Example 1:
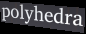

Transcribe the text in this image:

polyhedra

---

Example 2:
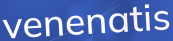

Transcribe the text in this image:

venenatis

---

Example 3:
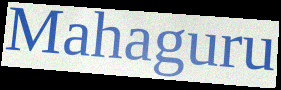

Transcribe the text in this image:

Mahaguru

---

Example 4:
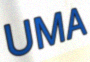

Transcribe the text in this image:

UMA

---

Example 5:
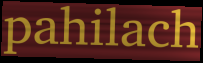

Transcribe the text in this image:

pahilach